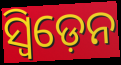
ସ୍ବିଡ଼େନ